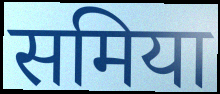
समिया